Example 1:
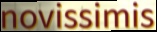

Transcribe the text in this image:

novissimis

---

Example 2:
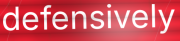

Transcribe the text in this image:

defensively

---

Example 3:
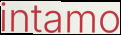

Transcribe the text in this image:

intamo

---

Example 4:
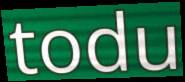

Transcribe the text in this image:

todu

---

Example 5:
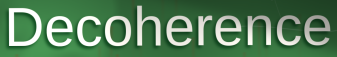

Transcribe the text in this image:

Decoherence